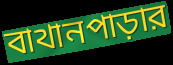
বাথানপাড়ার